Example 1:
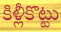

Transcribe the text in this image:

కిళ్లీకొట్టు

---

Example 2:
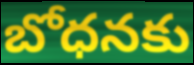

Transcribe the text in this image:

బోధనకు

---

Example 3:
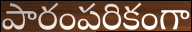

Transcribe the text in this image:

పారంపరికంగా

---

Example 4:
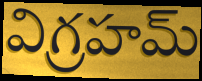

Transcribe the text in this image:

విగ్రహమ్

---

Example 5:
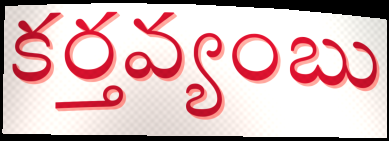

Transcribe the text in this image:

కర్తవ్యంబు